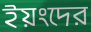
ইয়ংদের